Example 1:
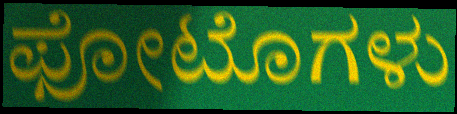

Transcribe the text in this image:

ಫೋಟೊಗಳು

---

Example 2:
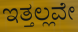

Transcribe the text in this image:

ಇತ್ತಲ್ಲವೇ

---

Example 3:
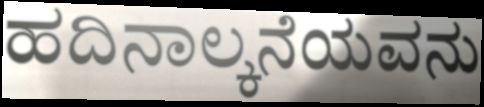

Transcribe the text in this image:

ಹದಿನಾಲ್ಕನೆಯವನು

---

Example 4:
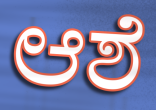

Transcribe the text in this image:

ಆಶೆ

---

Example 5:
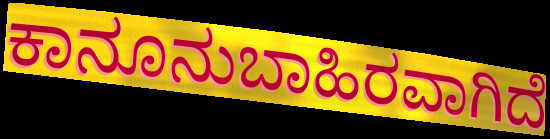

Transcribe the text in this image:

ಕಾನೂನುಬಾಹಿರವಾಗಿದೆ